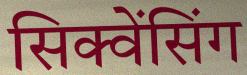
सिक्वेंसिंग